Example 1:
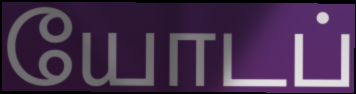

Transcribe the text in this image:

யோடப்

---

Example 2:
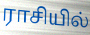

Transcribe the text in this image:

ராசியில்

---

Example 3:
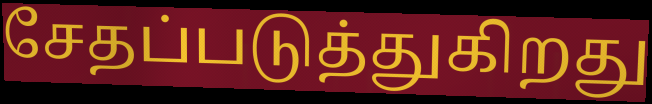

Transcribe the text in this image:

சேதப்படுத்துகிறது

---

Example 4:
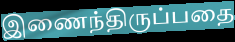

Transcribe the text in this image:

இணைந்திருப்பதை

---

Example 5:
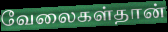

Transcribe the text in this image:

வேலைகள்தான்